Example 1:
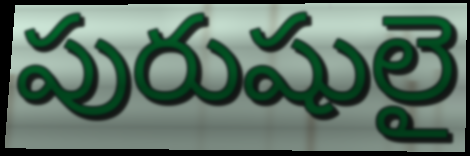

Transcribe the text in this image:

పురుషులై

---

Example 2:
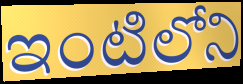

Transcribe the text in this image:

ఇంటిలోని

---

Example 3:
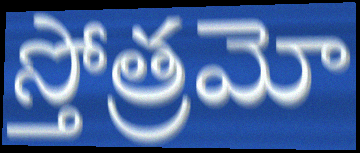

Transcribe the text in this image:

స్తోత్రమో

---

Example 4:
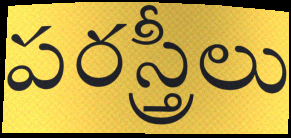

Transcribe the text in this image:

పరస్త్రీలు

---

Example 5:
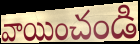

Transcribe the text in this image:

వాయించండి